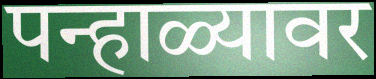
पन्हाळ्यावर